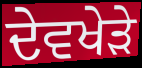
ਦੇਵਖੇੜੇ